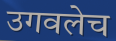
उगवलेच